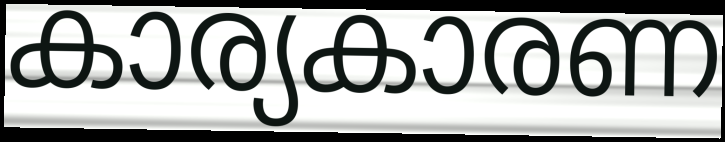
കാര്യകാരണ